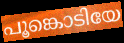
പൂങ്കൊടിയേ